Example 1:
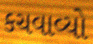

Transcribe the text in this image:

કચવાવ્યો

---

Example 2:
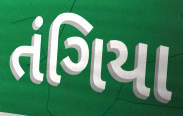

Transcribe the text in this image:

તંગિયા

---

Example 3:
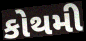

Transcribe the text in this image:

કોથમી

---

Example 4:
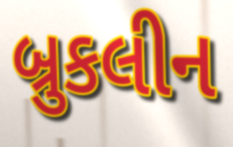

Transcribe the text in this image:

બ્રુકલીન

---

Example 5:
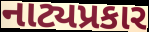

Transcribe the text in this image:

નાટ્યપ્રકાર